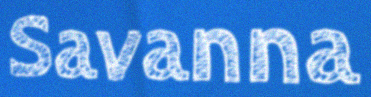
Savanna